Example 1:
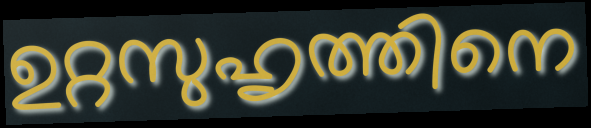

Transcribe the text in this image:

ഉറ്റസുഹൃത്തിനെ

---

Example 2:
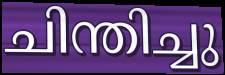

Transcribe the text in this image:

ചിന്തിച്ചു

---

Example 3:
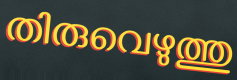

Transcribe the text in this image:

തിരുവെഴുത്തു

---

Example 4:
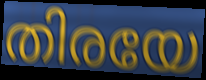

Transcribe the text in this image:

തിരയേ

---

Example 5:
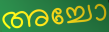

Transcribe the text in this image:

അച്ചോ